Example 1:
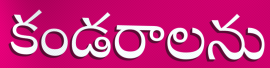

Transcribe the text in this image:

కండరాలను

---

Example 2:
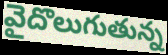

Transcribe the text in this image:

వైదొలుగుతున్న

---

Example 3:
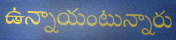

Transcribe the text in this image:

ఉన్నాయంటున్నారు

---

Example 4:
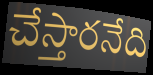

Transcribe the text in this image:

చేస్తారనేది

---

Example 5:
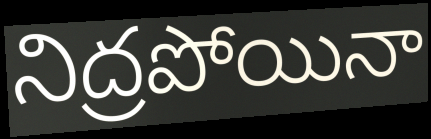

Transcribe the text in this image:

నిద్రపోయినా